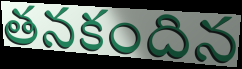
తనకందిన